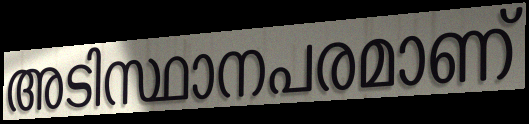
അടിസ്ഥാനപരമാണ്